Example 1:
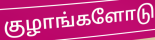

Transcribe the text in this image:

குழாங்களோடு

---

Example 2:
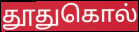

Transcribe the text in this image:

தூதுகொல்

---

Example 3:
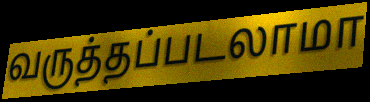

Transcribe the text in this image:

வருத்தப்படலாமா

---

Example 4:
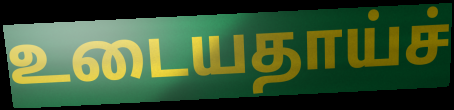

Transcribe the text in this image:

உடையதாய்ச்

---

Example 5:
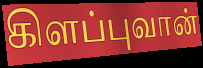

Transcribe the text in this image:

கிளப்புவான்